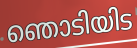
ഞൊടിയിട